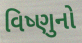
વિષ્ણુનો